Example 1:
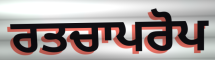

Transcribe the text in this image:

ਰਤਚਾਪਰੋਪ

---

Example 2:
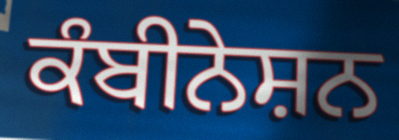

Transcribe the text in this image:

ਕੰਬੀਨੇਸ਼ਨ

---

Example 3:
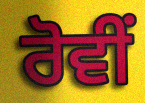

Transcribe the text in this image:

ਰੋਵੀਂ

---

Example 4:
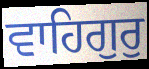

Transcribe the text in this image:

ਵਾਹਿਗੁਰੁ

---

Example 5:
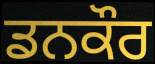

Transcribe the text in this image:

ਡਨਕੌਰ